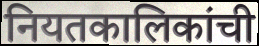
नियतकालिकांची